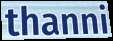
thanni